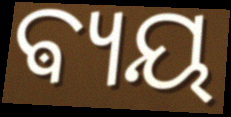
ଵ୍ୟୟ